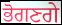
ਭੋਗਣਗੇ